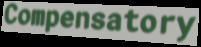
Compensatory